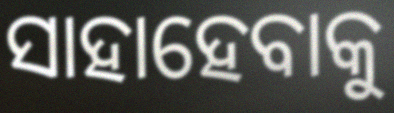
ସାହାହେବାକୁ